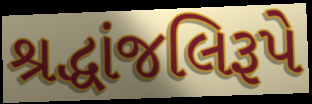
શ્રદ્ધાંજલિરૂપે